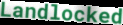
Landlocked